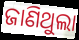
ଜାଣିଥୁଲା